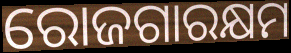
ରୋଜଗାରକ୍ଷମ